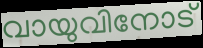
വായുവിനോട്